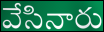
వేసినారు